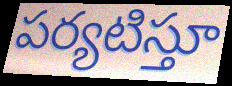
పర్యటిస్తూ